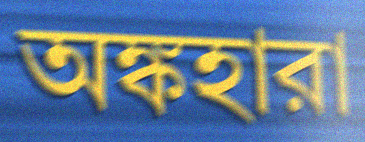
অঙ্কহারা